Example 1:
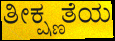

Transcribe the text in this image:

ತೀಕ್ಷ್ಣತೆಯ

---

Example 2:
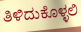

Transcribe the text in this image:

ತಿಳಿದುಕೊಳ್ಳಲಿ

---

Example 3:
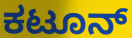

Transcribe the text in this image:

ಕಟೂನ್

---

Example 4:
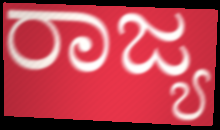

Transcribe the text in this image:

ರಾಜ್ಯ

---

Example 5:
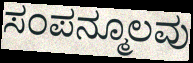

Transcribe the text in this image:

ಸಂಪನ್ಮೂಲವು